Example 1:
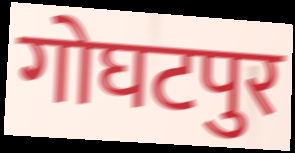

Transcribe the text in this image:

गोघटपुर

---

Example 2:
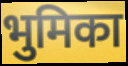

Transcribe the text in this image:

भुमिका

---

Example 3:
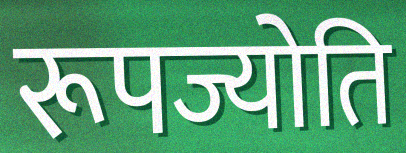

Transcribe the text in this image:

रूपज्योति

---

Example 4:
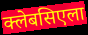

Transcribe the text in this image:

क्लेबसिएला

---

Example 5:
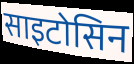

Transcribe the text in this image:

साइटोसिन